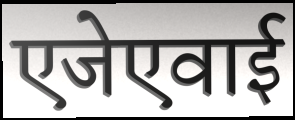
एजेएवाई